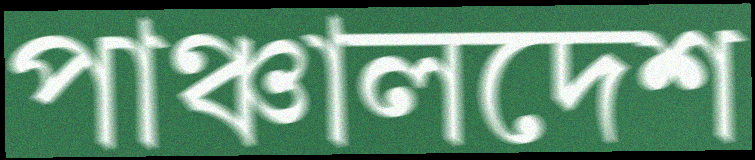
পাঞ্চালদেশ